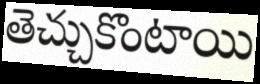
తెచ్చుకొంటాయి